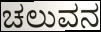
ಚಲುವನ